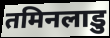
तमिनलाडु